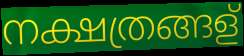
നക്ഷത്രങ്ങള്